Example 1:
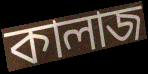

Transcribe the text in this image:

কালাজ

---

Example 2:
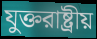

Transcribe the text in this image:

যুক্তরাষ্ট্রীয়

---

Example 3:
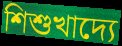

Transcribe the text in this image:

শিশুখাদ্যে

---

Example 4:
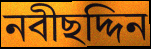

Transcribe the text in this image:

নবীছদ্দিন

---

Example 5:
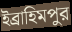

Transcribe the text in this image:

ইব্রাহিমপুর